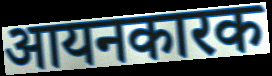
आयनकारक